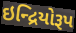
ઇન્દ્રિયોરૂપ